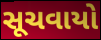
સૂચવાયો